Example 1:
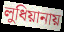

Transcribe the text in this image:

লুধিয়ানায়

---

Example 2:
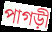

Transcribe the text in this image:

পাগড়ী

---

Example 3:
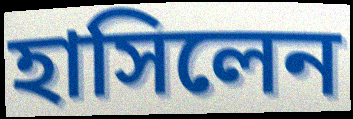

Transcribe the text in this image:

হাসিলেন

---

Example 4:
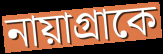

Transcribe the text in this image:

নায়াগ্রাকে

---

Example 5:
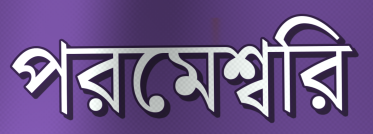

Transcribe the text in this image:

পরমেশ্বরি